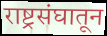
राष्ट्रसंघातून